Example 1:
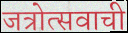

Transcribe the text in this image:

जत्रोत्सवाची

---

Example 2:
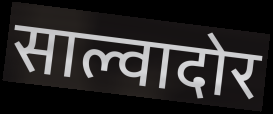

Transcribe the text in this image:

साल्वादोर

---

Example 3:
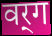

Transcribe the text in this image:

वर्ग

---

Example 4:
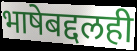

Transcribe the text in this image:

भाषेबद्दलही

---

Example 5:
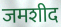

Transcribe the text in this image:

जमशीद